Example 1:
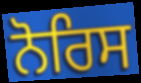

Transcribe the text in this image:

ਨੋਰਿਸ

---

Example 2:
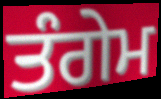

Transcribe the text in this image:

ਤੰਗੇਮ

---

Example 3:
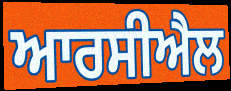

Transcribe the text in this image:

ਆਰਸੀਐਲ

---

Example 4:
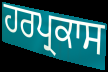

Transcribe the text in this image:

ਹਰਪ੍ਰਕਾਸ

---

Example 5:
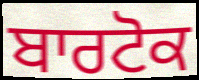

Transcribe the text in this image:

ਬਾਰਟੋਕ